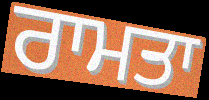
ਰਾਮਤਾ